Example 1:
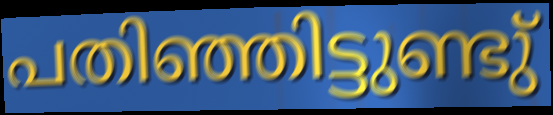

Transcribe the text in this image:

പതിഞ്ഞിട്ടുണ്ടു്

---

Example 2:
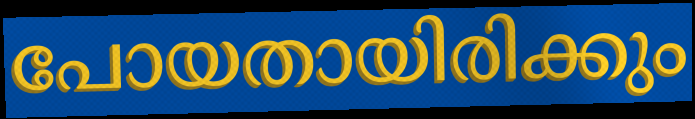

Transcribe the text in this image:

പോയതായിരിക്കും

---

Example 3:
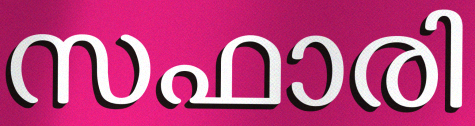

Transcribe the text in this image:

സഫാരി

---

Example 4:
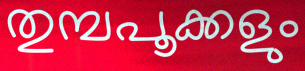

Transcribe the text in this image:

തുമ്പപൂക്കളും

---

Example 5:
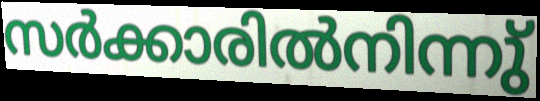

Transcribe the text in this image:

സർക്കാരിൽനിന്നു്